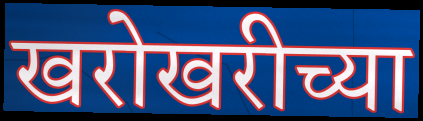
खरोखरीच्या